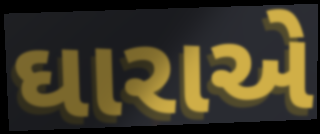
ઘારાએ